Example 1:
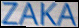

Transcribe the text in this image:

ZAKA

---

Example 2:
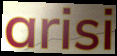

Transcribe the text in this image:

arisi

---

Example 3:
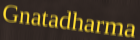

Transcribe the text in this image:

Gnatadharma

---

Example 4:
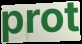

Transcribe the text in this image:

prot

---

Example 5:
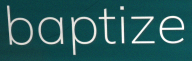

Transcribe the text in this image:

baptize